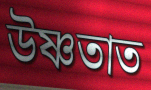
উষ্ণতাত